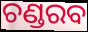
ଚଣ୍ଡରବ